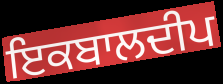
ਇਕਬਾਲਦੀਪ